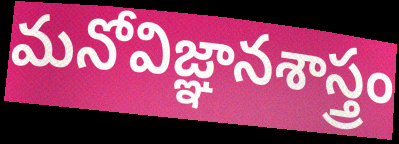
మనోవిజ్ఞానశాస్త్రం